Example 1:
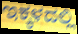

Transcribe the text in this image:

ಇಕ್ಕಳದಲ್ಲಿ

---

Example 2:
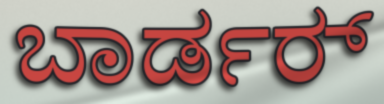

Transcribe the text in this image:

ಬಾರ್ಡರ್‍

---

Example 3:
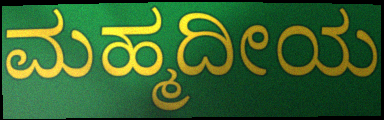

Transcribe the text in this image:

ಮಹ್ಮದೀಯ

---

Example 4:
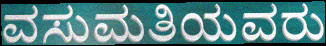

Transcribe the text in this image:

ವಸುಮತಿಯವರು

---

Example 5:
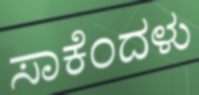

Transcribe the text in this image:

ಸಾಕೆಂದಳು